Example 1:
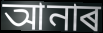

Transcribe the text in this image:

আনাৰ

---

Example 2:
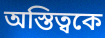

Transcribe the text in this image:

অস্তিত্বকে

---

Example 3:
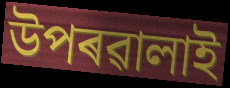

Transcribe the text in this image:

উপৰৱালাই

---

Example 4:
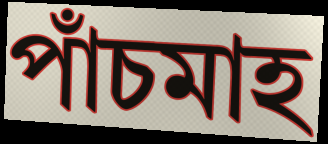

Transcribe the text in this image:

পাঁচমাহ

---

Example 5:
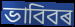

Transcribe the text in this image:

ভাবিবৰ